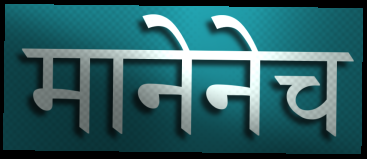
मानेनेच